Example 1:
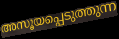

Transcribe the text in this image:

അസൂയപ്പെടുത്തുന്ന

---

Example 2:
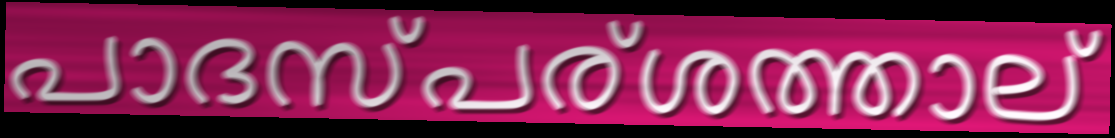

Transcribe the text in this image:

പാദസ്പര്ശത്താല്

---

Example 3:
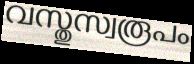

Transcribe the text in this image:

വസ്തുസ്വരൂപം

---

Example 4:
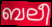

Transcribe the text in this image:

ബലീ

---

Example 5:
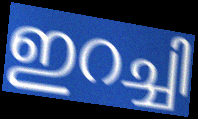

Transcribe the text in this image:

ഇറച്ചി